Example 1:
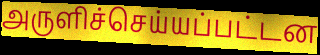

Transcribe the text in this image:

அருளிச்செய்யப்பட்டன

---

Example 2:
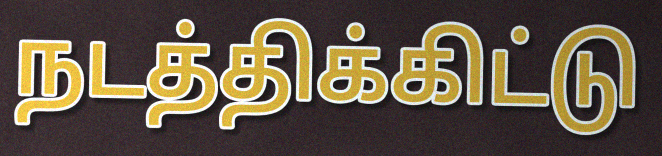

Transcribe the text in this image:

நடத்திக்கிட்டு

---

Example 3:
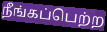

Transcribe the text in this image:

நீங்கப்பெற்ற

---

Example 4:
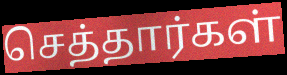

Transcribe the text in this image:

செத்தார்கள்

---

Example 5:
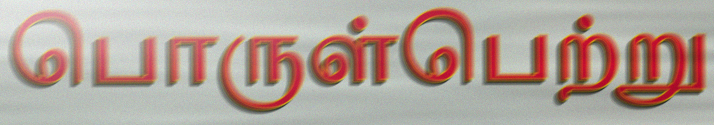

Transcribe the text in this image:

பொருள்பெற்று